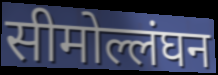
सीमोल्लंघन